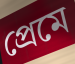
প্ৰেমে